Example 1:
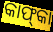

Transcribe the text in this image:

କାଫ୍‍କା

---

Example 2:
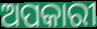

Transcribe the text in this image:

ଅପକାରୀ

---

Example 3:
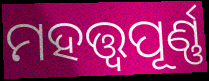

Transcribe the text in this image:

ମହତ୍ତ୍ୱପୂର୍ଣ୍ଣ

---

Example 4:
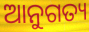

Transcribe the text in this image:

ଆନୁଗତ୍ୟ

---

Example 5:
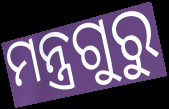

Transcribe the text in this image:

ମନ୍ତ୍ରଗୁରୁ